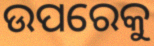
ଉପରେକୁ